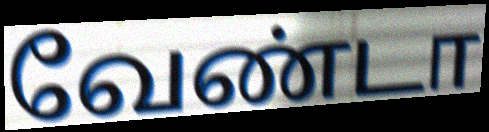
வேண்டா